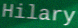
Hilary